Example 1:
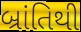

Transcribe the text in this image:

બ્રાંતિથી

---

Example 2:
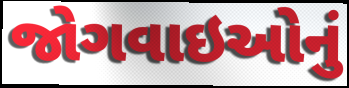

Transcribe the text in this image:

જોગવાઇઓનું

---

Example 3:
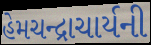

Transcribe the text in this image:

હેમચન્દ્રાચાર્યની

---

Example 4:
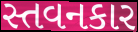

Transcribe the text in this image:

સ્તવનકાર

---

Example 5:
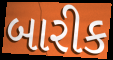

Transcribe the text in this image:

બારીક